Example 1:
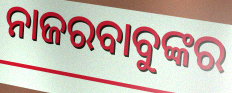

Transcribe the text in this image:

ନାଜରବାବୁଙ୍କର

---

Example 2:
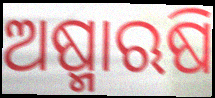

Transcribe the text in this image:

ଅଷ୍ମାଋଷି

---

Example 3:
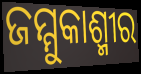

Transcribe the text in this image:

ଜମ୍ମୁକାଶ୍ମୀର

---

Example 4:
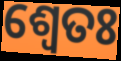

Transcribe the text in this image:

ଶ୍ଵେତଃ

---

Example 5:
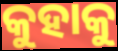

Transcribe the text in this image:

କୁହାକୁ